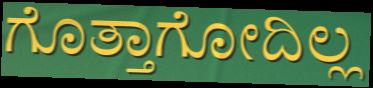
ಗೊತ್ತಾಗೋದಿಲ್ಲ